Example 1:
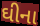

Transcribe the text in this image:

ઘીના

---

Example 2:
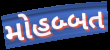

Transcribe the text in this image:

મોહબ્બત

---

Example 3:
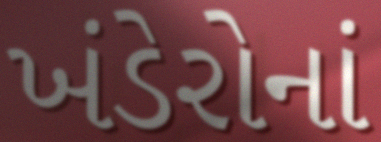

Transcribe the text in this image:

ખંડેરોનાં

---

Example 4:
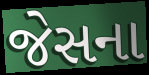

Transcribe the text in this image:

જેસના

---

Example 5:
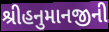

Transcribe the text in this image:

શ્રીહનુમાનજીની